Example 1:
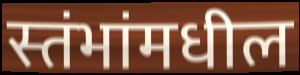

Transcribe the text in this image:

स्तंभांमधील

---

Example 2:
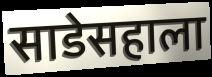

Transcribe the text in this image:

साडेसहाला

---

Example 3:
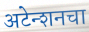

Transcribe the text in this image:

अटेन्शनचा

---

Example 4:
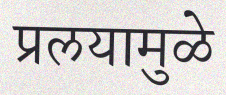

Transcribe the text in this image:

प्रलयामुळे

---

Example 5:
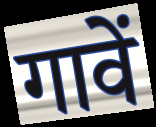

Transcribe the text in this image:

गावें